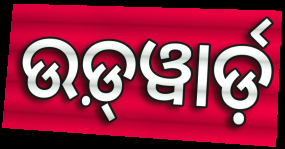
ଉଡ଼୍‍ୱାର୍ଡ଼